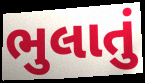
ભુલાતું